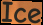
Ice